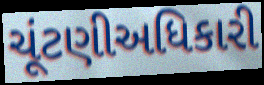
ચૂંટણીઅધિકારી